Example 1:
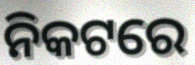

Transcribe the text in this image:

ନିକଟରେ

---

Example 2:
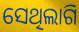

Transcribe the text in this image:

ସେଥିଲାଗି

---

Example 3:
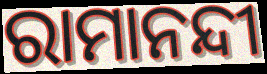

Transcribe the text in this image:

ରାମାନନ୍ଦୀ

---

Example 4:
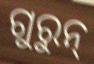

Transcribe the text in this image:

ଗୁରୁନ୍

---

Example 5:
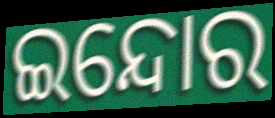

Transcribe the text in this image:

ଇନ୍ଦୋର